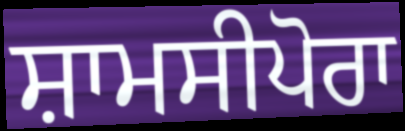
ਸ਼ਾਮਸੀਪੋਰਾ